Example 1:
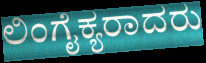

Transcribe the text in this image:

ಲಿಂಗೈಕ್ಯರಾದರು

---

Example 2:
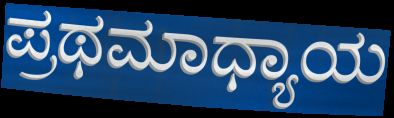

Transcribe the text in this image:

ಪ್ರಥಮಾಧ್ಯಾಯ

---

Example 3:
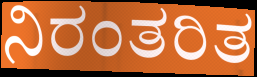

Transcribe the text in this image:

ನಿರಂತರಿತ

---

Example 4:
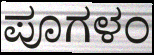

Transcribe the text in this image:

ಪೂಗಳಂ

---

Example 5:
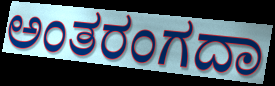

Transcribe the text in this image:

ಅಂತರಂಗದಾ